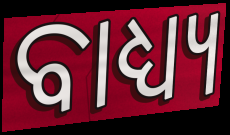
ବାଧ୍ୟ୍ୟ